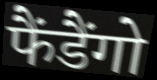
फैंडैंगो